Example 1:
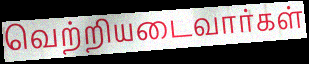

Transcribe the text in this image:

வெற்றியடைவார்கள்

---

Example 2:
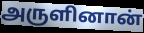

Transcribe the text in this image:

அருளினான்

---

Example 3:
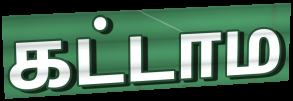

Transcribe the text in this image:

கட்டாம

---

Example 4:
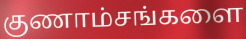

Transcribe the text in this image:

குணாம்சங்களை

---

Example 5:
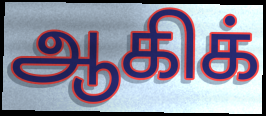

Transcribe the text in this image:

ஆகிக்